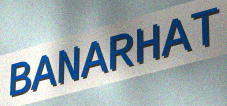
BANARHAT